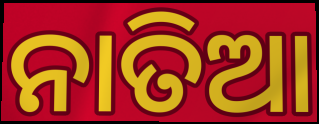
ନାତିଆ